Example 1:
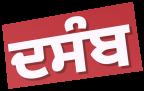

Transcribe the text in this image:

ਦਸੰਬ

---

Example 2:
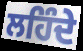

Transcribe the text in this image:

ਲਹਿੰਦੇ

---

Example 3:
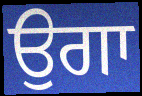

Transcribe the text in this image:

ਉਗਾ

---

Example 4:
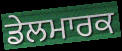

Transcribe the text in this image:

ਡੇਲਮਾਰਕ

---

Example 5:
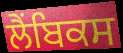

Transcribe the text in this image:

ਲੈਂਬਿਕਸ